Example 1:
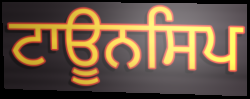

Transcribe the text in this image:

ਟਾਊਨਸਿਪ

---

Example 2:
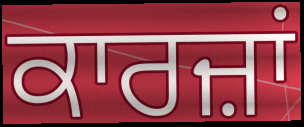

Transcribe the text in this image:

ਕਾਰਜ਼ਾਂ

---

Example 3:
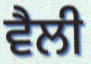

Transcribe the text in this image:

ਵੈਲੀ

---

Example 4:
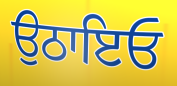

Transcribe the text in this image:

ਉਠਾਇਓ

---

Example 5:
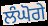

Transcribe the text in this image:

ਲੰਘੋਗੇ